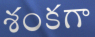
శంకగా